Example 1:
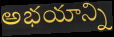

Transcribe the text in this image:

అభయాన్ని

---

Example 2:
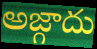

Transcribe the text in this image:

అజ్గాదు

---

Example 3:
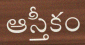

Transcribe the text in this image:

ఆస్తీకం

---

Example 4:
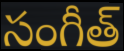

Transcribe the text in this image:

సంగీత్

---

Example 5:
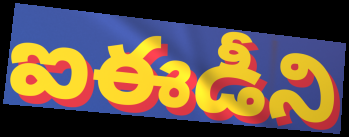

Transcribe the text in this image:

ఐఈడీని